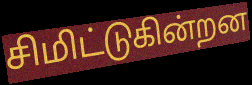
சிமிட்டுகின்றன